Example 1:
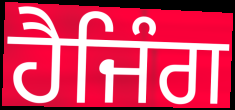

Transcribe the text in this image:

ਹੈਜਿੰਗ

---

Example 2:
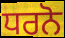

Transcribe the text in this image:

ਧਰਨੋ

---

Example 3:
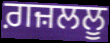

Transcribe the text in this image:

ਗ਼ਜ਼ਲਲੂ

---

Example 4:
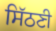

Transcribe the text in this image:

ਸਿੱਠਣੀ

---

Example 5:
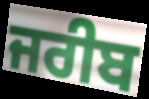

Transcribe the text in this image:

ਜਰੀਬ